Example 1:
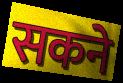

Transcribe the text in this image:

सकने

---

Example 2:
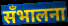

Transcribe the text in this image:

सँभालना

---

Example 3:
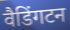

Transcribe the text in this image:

वैडिंगटन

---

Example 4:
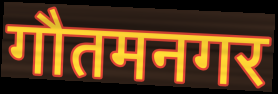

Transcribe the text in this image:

गौतमनगर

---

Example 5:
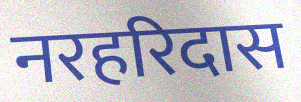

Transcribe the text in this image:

नरहरिदास